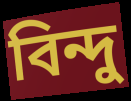
বিন্দু